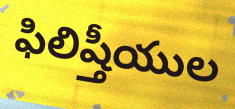
ఫిలిష్తీయుల